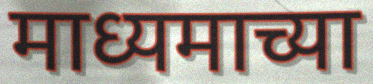
माध्यमाच्या